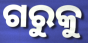
ଗରୁକୁ